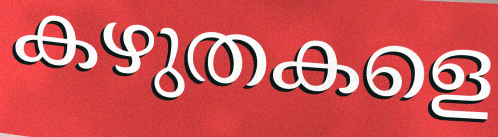
കഴുതകളെ